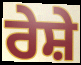
ਰੇਸ਼ੇ